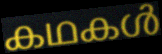
കഥകൾ